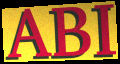
ABI